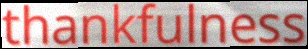
thankfulness